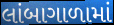
લાંબાગાળામાં